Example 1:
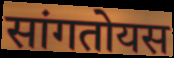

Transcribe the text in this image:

सांगतोयस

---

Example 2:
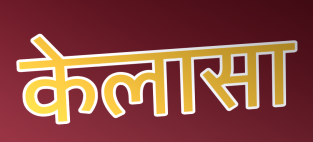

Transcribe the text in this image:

केलासा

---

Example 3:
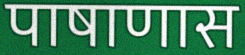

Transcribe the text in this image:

पाषाणास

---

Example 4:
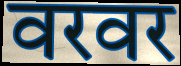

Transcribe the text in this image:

वरवर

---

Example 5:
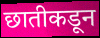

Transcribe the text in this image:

छातीकडून